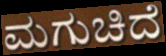
ಮಗುಚಿದೆ